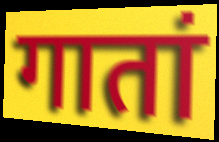
गातां